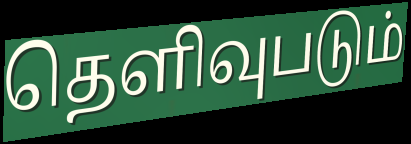
தெளிவுபடும்